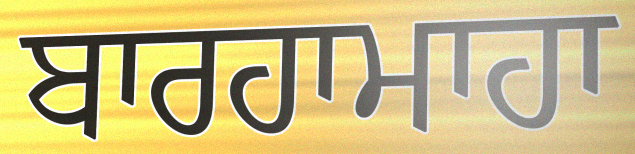
ਬਾਰਹਾਮਾਹਾ